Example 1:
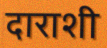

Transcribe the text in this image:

दाराशी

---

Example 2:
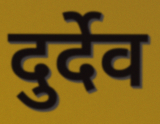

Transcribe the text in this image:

दुर्देव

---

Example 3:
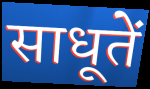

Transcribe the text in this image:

साधूतें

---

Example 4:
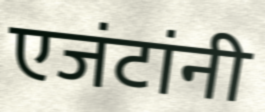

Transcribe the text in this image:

एजंटांनी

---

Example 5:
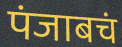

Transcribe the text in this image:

पंजाबचं